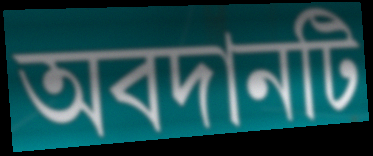
অবদানটি